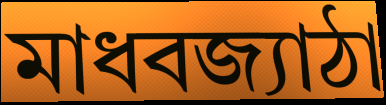
মাধবজ্যাঠা